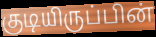
குடியிருப்பின்